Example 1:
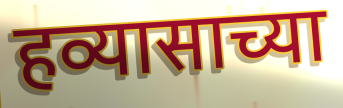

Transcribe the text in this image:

हव्यासाच्या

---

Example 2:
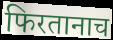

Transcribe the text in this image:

फिरतानाच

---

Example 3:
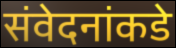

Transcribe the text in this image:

संवेदनांकडे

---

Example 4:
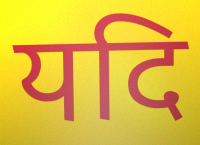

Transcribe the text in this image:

यदि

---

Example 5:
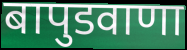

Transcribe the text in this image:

बापुडवाणा